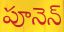
పూనెన్